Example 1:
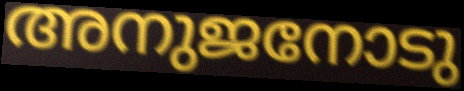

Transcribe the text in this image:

അനുജനോടു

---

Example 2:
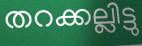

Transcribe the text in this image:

തറക്കല്ലിട്ടു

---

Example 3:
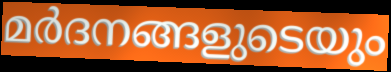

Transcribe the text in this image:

മർദനങ്ങളുടെയും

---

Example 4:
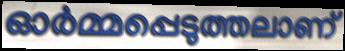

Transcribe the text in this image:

ഓർമ്മപ്പെടുത്തലാണ്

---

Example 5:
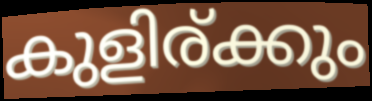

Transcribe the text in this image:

കുളിര്ക്കും